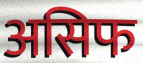
असिफ